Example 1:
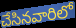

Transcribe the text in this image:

చేసినవారిలో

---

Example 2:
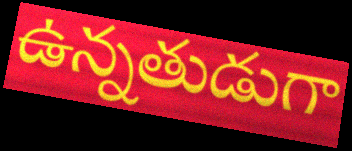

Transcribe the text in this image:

ఉన్నతుడుగా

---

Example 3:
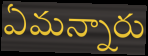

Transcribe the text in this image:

ఏమన్నారు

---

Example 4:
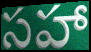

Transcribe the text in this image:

సహా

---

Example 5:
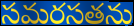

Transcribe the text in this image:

సమరసతను